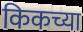
किकच्या